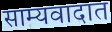
साम्यवादात